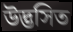
উদ্ভসিত